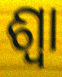
ଶ୍ୱା